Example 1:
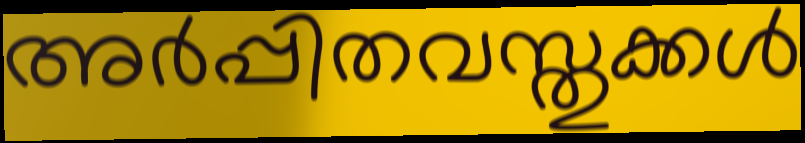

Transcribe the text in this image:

അർപ്പിതവസ്തുക്കൾ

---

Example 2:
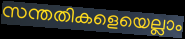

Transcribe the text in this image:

സന്തതികളെയെല്ലാം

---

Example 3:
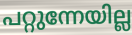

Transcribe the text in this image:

പറ്റുന്നേയില്ല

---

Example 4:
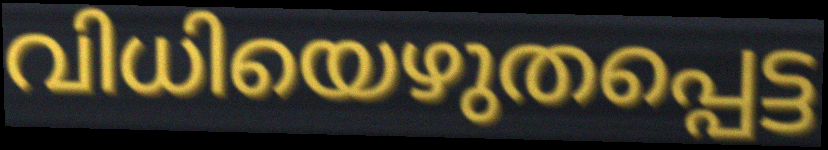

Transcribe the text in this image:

വിധിയെഴുതപ്പെട്ട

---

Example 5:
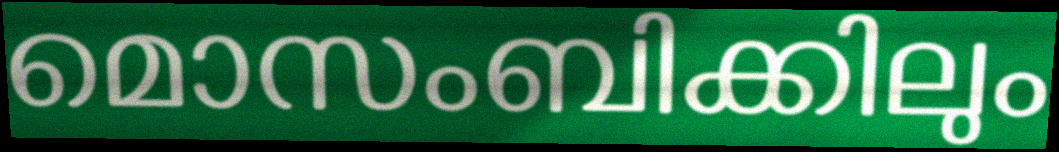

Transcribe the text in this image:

മൊസംബിക്കിലും